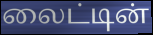
லைட்டின்